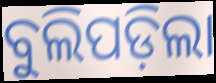
ବୁଲିପଡ଼ିଲା